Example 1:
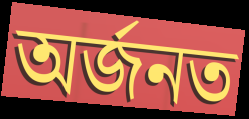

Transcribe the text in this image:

অৰ্জনত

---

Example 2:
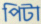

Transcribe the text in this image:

পিটা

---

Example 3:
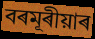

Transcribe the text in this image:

বৰমূৰীয়াৰ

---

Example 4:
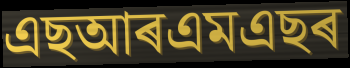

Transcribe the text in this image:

এছআৰএমএছৰ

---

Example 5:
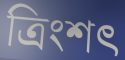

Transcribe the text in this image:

ত্ৰিংশৎ